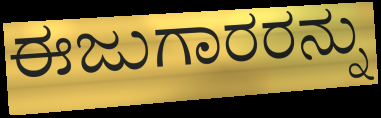
ಈಜುಗಾರರನ್ನು